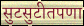
सुटसुटीतपणा